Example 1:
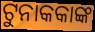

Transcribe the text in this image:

ଟୁନାକକାଙ୍କ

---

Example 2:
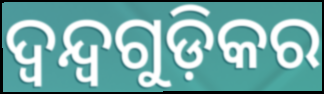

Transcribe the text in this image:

ଦ୍ୱନ୍ଦ୍ୱଗୁଡ଼ିକର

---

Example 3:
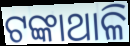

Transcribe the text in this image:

ଟଙ୍କାଥାଳି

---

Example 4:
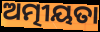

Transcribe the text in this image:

ଅତ୍ମୀୟତା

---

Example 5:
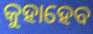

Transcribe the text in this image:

କୁହାହେବ